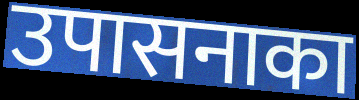
उपासनाका